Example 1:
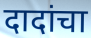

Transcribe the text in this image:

दादांचा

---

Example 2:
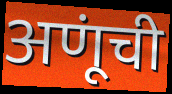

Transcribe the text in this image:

अणूंची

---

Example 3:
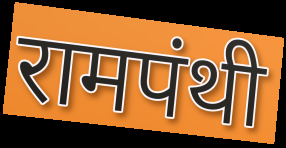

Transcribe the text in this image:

रामपंथी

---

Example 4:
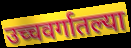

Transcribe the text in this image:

उच्चवर्गातल्या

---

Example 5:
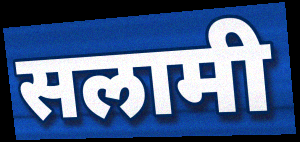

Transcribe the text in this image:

सलामी